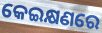
କେଇକ୍ଷଣରେ